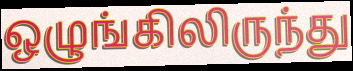
ஒழுங்கிலிருந்து